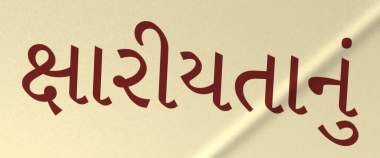
ક્ષારીયતાનું